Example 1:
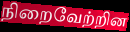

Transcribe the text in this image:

நிறைவேற்றின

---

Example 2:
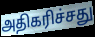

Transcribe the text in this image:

அதிகரிச்சது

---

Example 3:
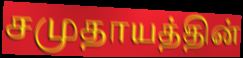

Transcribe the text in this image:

சமுதாயத்தின்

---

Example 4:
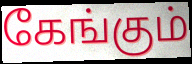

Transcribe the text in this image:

கேங்கும்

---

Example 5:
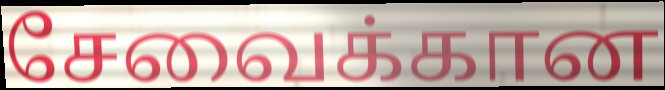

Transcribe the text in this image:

சேவைக்கான